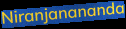
Niranjanananda